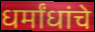
धर्मांधांचे